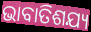
ଭାବାତିଶଯ୍ୟ